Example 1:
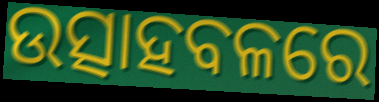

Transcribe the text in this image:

ଉତ୍ସାହବଳରେ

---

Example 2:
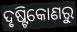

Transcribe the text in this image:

ଦୃଷ୍ଟିକୋଣରୁ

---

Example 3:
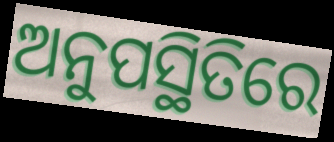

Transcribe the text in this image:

ଅନୁପସ୍ଥିତିରେ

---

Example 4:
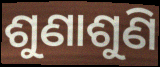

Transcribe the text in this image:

ଶୁଣାଶୁଣି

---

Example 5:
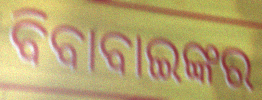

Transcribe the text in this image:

ବିବାବାଇଙ୍କର